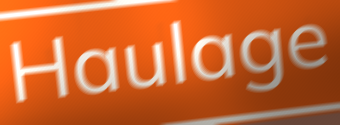
Haulage